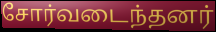
சோர்வடைந்தனர்